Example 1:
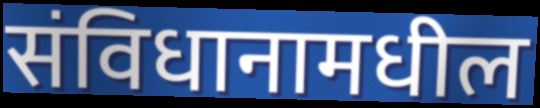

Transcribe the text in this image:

संविधानामधील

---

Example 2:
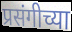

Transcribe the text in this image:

प्रसंगीच्या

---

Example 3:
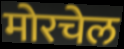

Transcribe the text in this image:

मोरचेल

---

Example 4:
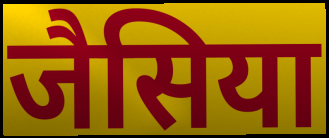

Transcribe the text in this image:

जैसिया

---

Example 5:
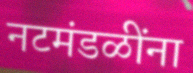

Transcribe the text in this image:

नटमंडळींना